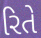
રિતે